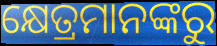
କ୍ଷେତ୍ରମାନଙ୍କରୁ